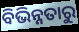
ବିଭିନ୍ନତାରୁ